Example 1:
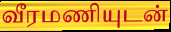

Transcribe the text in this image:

வீரமணியுடன்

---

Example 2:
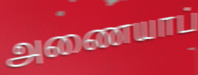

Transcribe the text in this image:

அணையாப்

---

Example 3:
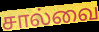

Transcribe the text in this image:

சால்வை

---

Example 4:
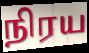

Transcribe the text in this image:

நிரய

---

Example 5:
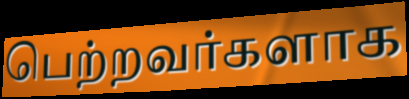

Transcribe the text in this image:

பெற்றவர்களாக